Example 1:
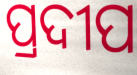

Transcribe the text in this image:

ପ୍ରଦୀପ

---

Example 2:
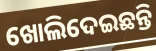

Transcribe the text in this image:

ଖୋଲିଦେଇଛନ୍ତି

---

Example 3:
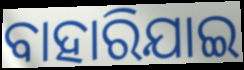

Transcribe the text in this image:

ବାହାରିଯାଇ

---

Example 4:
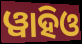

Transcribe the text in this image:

ୱାହିଓ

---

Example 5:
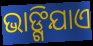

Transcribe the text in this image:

ଭାଙ୍ଗିଯାଏ